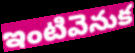
ఇంటివెనుక